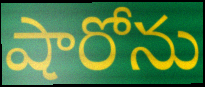
షారోను